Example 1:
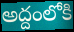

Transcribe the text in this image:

అద్దంలోకి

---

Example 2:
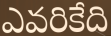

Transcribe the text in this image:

ఎవరికేది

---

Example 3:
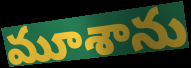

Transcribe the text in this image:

మూశాను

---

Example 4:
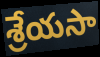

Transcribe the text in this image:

శ్రేయసా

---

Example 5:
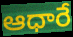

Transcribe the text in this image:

ఆధారే